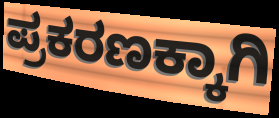
ಪ್ರಕರಣಕ್ಕಾಗಿ